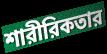
শারীরিকতার